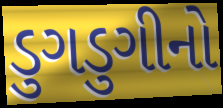
ડુગડુગીનો